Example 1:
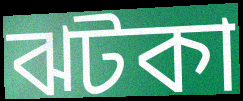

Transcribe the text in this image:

ঝটকা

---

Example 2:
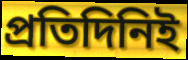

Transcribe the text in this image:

প্রতিদিনিই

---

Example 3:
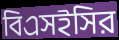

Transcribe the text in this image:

বিএসইসির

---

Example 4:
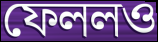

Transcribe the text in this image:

ফেললও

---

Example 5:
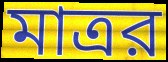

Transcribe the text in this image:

মাত্রর